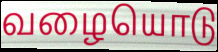
வழையொடு